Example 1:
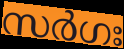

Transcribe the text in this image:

സർഗഃ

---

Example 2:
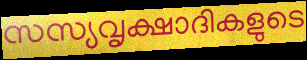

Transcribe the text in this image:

സസ്യവൃക്ഷാദികളുടെ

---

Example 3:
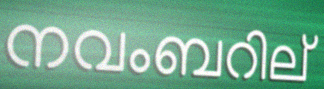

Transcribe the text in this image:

നവംബറില്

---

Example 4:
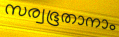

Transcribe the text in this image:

സര്വഭൂതാനാം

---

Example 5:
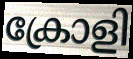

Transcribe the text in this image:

ക്രോളി